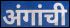
अंगांची